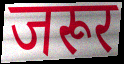
जरूर